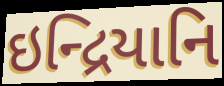
ઇન્દ્રિયાનિ